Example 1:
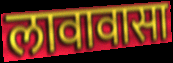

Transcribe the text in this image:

लावावासा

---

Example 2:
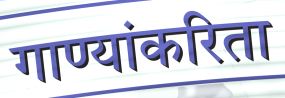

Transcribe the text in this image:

गाण्यांकरिता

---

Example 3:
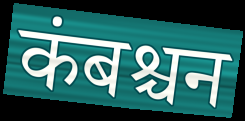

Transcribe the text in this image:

कंबश्चन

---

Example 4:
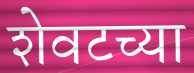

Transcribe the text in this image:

शेवटच्या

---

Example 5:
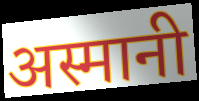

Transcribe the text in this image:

अस्मानी